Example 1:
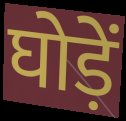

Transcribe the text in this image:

घोड़ें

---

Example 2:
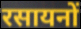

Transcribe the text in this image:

रसायनों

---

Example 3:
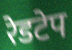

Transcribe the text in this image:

रेडटेप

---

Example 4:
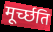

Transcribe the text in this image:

मूर्च्छति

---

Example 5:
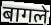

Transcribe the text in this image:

बागले